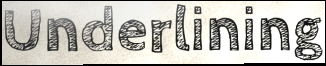
Underlining